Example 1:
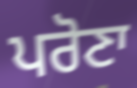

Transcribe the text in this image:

ਪਰੋਣਾ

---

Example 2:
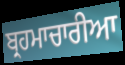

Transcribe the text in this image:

ਬ੍ਰਹਮਾਚਾਰੀਆ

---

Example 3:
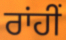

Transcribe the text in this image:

ਰਾਂਹੀਂ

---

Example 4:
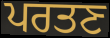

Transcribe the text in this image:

ਪਰਤਣ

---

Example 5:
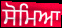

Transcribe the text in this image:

ਸੋਮਿਆ